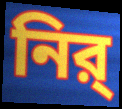
নির্